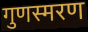
गुणस्मरण